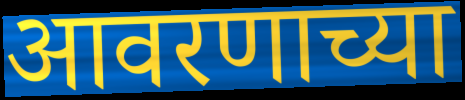
आवरणाच्या